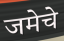
जमेचे